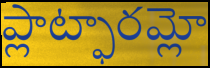
ప్లాట్ఫారమ్లో